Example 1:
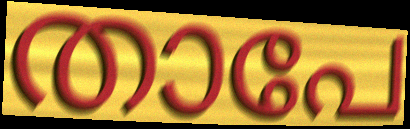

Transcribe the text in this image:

താപേ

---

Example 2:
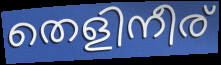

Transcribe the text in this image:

തെളിനീര്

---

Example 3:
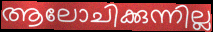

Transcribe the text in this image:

ആലോചിക്കുന്നില്ല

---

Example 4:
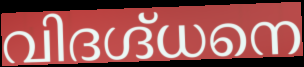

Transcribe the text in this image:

വിദഗ്ദ്ധനെ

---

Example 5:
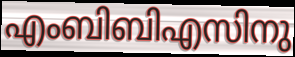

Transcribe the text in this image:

എംബിബിഎസിനു